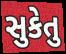
સુકેતુ